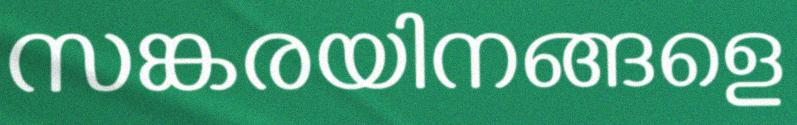
സങ്കരയിനങ്ങളെ